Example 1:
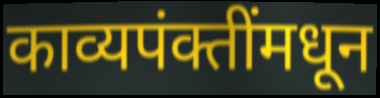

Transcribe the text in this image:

काव्यपंक्तींमधून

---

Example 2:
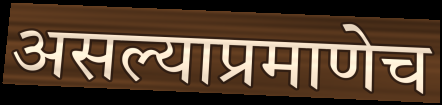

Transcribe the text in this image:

असल्याप्रमाणेच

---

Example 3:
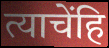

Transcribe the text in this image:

त्याचेंहि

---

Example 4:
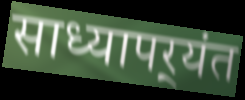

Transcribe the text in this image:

साध्यापर्यंत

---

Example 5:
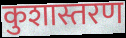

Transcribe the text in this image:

कुशास्तरण